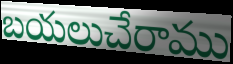
బయలుచేరాము